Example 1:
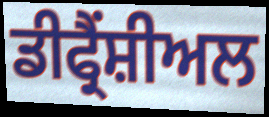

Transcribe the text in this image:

ਡੀਫ੍ਰੈਂਸ਼ੀਅਲ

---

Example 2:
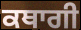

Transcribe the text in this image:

ਕਥਾਗੀ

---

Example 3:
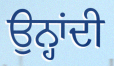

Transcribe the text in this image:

ਉਨ੍ਹਾਂਦੀ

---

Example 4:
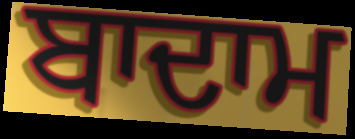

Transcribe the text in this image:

ਬਾਦਾਮ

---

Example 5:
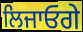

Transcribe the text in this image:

ਲਿਜਾਓਗੇ